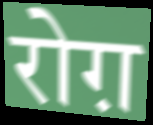
रोग़